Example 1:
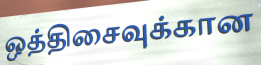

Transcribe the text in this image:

ஒத்திசைவுக்கான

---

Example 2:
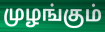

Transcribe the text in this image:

முழங்கும்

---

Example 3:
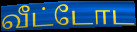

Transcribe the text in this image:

வீட்டோட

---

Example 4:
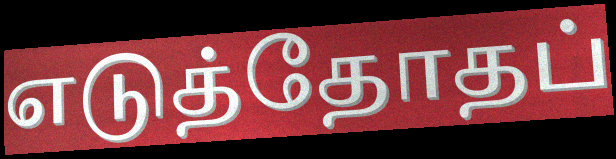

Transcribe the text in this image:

எடுத்தோதப்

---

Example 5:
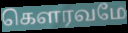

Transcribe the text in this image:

கௌரவமே